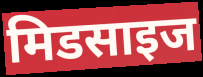
मिडसाइज